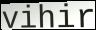
vihir